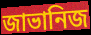
জাভানিজ